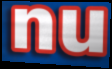
nu